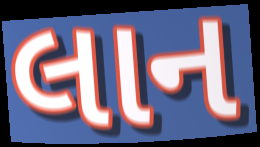
લાન